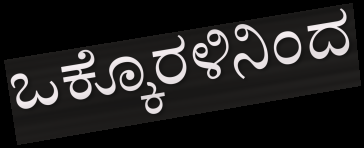
ಒಕ್ಕೊರಳಿನಿಂದ